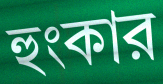
হুংকার